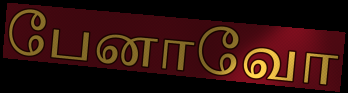
பேனாவோ